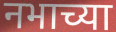
नभाच्या